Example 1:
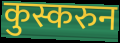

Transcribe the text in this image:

कुस्करुन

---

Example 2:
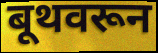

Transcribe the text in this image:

बूथवरून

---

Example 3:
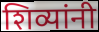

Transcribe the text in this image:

शिव्यांनी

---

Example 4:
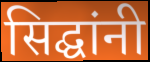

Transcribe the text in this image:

सिद्घांनी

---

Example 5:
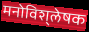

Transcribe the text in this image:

मनोविश्लेषक